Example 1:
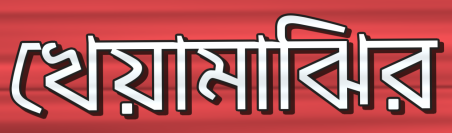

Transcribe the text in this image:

খেয়ামাঝির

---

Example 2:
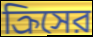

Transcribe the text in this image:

ক্রিসের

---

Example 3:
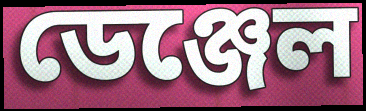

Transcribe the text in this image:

ডেঞ্জেল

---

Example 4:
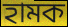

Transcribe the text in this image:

হামক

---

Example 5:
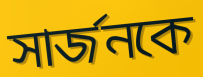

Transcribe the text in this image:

সার্জনকে